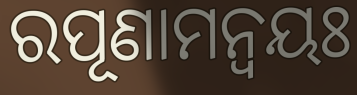
ରପୂଣାମନ୍ଵୟଃ